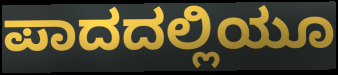
ಪಾದದಲ್ಲಿಯೂ